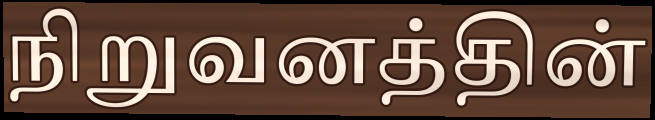
நிறுவனத்தின்